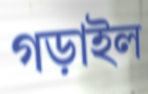
গড়াইল